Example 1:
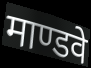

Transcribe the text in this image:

माण्डवे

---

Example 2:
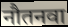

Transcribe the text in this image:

नौतनवा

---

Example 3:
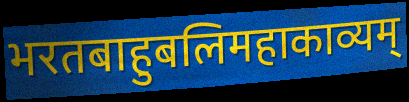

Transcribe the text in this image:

भरतबाहुबलिमहाकाव्यम्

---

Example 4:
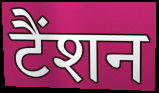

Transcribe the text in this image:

टैंशन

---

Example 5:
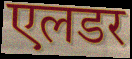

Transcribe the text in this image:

एलडर